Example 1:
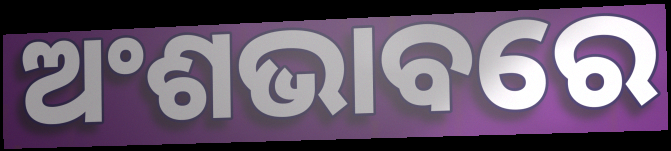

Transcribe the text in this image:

ଅଂଶଭାବରେ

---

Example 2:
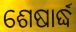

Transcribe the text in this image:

ଶେଷାର୍ଦ୍ଧ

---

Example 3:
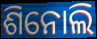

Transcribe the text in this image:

ଶିନୋଲି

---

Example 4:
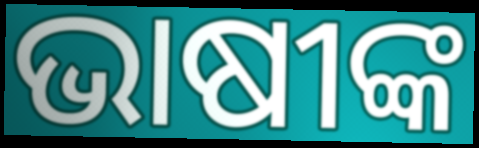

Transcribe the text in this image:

ଭାଷୀଙ୍କ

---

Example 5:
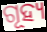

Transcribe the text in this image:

ଗୂହ୍ୟ